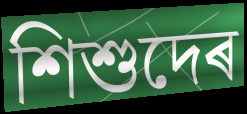
শিশুদেৰ